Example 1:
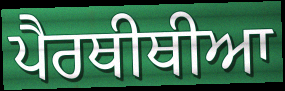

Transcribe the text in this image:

ਪੈਰਥੀਥੀਆ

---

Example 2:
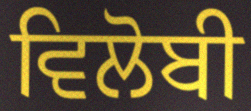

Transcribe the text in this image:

ਵਿਲੋਬੀ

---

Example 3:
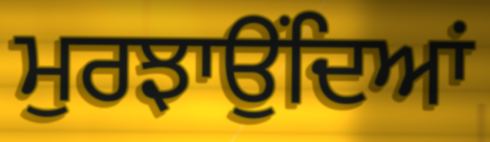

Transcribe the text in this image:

ਮੁਰਝਾਉਂਦਿਆਂ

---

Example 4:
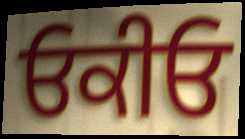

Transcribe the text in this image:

ਓਕੀਓ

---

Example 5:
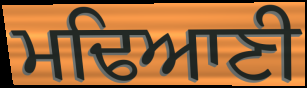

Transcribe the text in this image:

ਮਢਿਆਣੀ